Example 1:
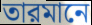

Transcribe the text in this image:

তারমানে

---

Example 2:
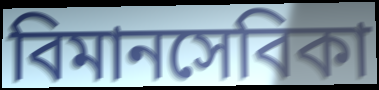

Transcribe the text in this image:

বিমানসেবিকা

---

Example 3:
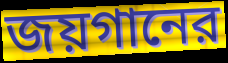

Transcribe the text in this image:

জয়গানের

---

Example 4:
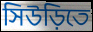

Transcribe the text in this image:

সিউড়িতে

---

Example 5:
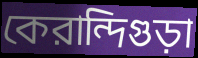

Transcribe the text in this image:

কেরান্দিগুড়া